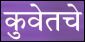
कुवेतचे